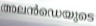
അലൻഡെയുടെ